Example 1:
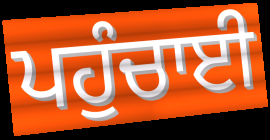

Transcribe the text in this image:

ਪਹੁੰਚਾਈ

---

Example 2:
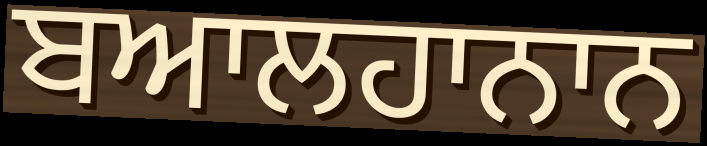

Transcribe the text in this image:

ਬਆਲਹਾਨਾਨ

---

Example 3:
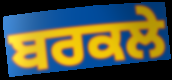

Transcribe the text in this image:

ਬਰਕਲੇ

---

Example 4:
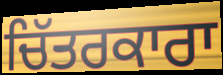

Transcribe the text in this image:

ਚਿੱਤਰਕਾਰਾ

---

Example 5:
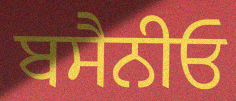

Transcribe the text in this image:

ਬਸੈਨੀਓ